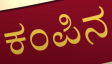
ಕಂಪಿನ